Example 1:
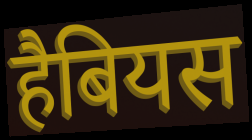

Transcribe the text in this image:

हैबियस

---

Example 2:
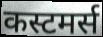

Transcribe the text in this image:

कस्टमर्स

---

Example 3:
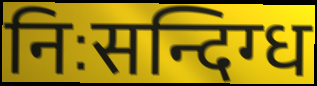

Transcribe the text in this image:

निःसन्दिग्ध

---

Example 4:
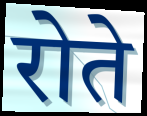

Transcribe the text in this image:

रोते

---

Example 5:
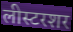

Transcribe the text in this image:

लीस्टरशर